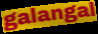
galangal